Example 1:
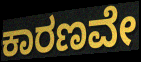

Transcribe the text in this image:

ಕಾರಣವೇ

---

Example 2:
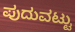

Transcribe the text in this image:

ಪುದುವಟ್ಟು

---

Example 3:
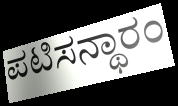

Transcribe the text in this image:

ಪಟಿಸನ್ಥಾರಂ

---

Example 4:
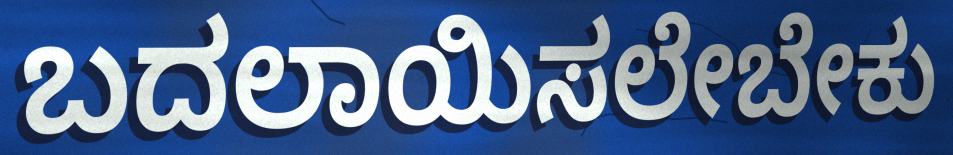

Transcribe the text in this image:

ಬದಲಾಯಿಸಲೇಬೇಕು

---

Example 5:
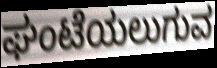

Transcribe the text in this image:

ಘಂಟೆಯಲುಗುವ